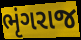
ભૃંગરાજ